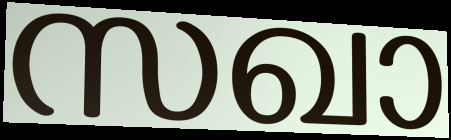
സഖാ